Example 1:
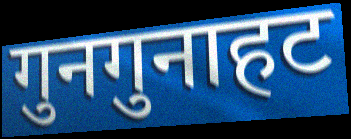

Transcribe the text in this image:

गुनगुनाहट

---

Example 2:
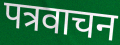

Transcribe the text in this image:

पत्रवाचन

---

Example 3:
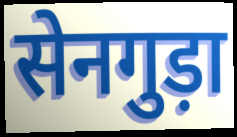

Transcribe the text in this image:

सेनगुड़ा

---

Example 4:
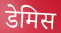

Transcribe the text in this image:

डेमिस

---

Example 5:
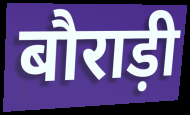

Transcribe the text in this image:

बौराड़ी